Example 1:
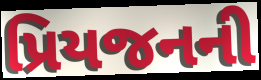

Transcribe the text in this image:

પ્રિયજનની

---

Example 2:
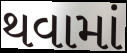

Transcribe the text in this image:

થવામાં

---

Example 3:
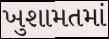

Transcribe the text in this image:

ખુશામતમાં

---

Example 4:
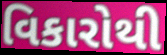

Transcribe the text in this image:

વિકારોથી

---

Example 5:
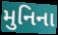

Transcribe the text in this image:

મુનિના